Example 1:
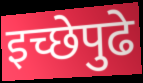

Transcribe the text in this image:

इच्छेपुढे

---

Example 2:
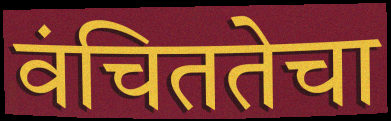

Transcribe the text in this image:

वंचिततेचा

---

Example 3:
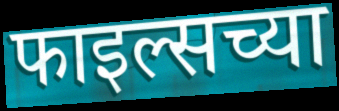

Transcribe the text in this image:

फाइल्सच्या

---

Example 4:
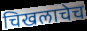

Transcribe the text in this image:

चिखलाचेच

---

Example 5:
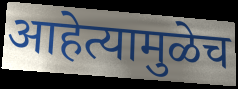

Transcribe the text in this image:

आहेत्यामुळेच